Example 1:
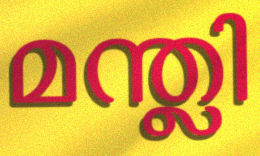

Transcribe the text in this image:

മന്ത്ലി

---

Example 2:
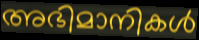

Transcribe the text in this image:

അഭിമാനികൾ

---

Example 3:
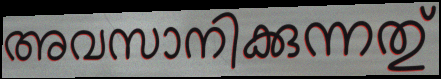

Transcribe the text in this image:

അവസാനിക്കുന്നതു്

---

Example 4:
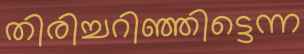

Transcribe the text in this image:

തിരിച്ചറിഞ്ഞിട്ടെന്ന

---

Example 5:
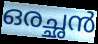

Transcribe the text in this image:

ഒരച്ഛൻ